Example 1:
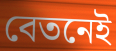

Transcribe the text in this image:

বেতনেই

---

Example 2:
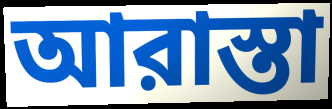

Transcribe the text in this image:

আরাস্তা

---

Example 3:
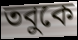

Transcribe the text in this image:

তবুকে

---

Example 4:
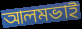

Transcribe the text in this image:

আলমভাই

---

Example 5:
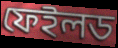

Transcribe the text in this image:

ফেইলড